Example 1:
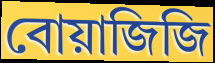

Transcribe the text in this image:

বোয়াজিজি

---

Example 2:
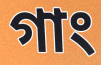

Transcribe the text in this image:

গাং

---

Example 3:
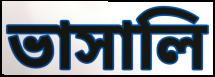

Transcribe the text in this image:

ভাসালি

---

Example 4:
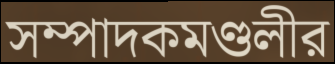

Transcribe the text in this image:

সম্পাদকমণ্ডলীর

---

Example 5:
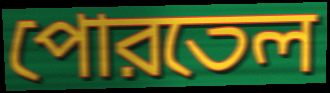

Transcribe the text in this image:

পোরতেল